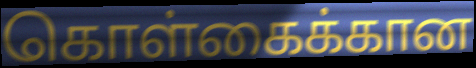
கொள்கைக்கான